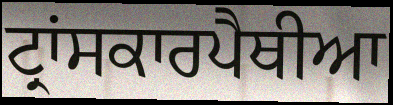
ਟ੍ਰਾਂਸਕਾਰਪੈਥੀਆ